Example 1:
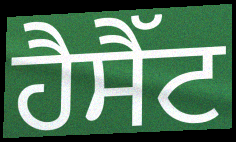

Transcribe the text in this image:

ਹੈਸੈੱਟ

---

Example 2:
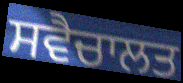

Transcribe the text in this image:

ਸਵੈਚਾਲਤ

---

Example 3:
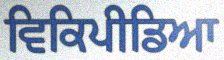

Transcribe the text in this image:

ਵਿਕਿਪੀਡਿਆ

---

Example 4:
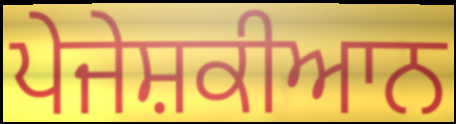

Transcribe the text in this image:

ਪੇਜੇਸ਼ਕੀਆਨ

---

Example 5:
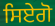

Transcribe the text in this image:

ਸਿਏਗੋ